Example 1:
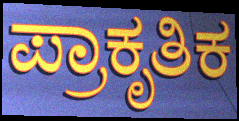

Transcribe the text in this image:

ಪ್ರಾಕೃತಿಕ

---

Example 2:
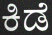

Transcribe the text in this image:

ಕಿಡೆ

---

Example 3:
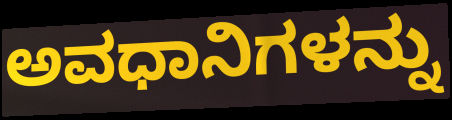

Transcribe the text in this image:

ಅವಧಾನಿಗಳನ್ನು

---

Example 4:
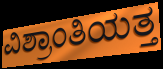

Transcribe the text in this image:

ವಿಶ್ರಾಂತಿಯತ್ತ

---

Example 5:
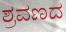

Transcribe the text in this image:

ಶ್ರವಣದ